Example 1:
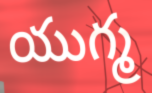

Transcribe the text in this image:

యుగ్మ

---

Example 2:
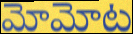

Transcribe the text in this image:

మోమోట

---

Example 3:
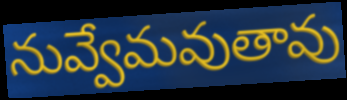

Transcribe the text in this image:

నువ్వేమవుతావు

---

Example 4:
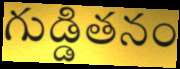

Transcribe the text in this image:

గుడ్డితనం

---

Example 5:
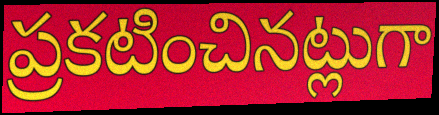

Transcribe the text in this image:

ప్రకటించినట్లుగా